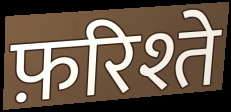
फ़रिश्ते